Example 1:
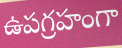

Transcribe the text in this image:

ఉపగ్రహంగా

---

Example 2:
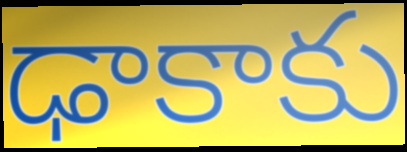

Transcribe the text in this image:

ఢాకాకు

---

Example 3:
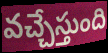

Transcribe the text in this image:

వచ్చేస్తుంది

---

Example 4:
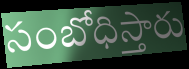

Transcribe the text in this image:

సంబోధిస్తారు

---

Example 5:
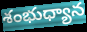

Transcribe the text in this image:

శంభుధ్యాన